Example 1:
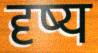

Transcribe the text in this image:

दृष्य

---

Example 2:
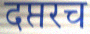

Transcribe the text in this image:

दप्तरच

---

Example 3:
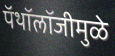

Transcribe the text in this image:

पॅथॉलॉजीमुळे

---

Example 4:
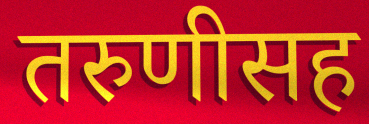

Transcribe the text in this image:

तरुणीसह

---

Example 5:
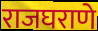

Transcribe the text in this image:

राजघराणे